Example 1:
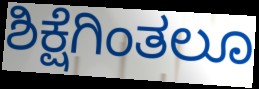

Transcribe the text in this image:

ಶಿಕ್ಷೆಗಿಂತಲೂ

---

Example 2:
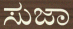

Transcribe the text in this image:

ಸುಜಾ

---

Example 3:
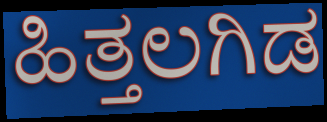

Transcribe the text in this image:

ಹಿತ್ತಲಗಿಡ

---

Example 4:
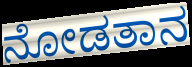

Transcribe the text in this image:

ನೋಡತಾನ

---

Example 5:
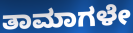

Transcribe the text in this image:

ತಾಮಾಗಳೇ